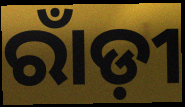
ରାଁଡ଼ୀ